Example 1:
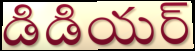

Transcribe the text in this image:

డిడియర్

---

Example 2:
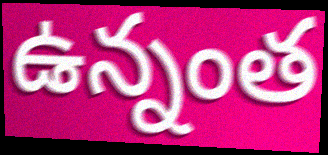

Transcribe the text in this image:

ఉన్నంత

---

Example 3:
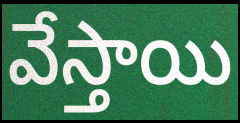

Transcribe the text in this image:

వేస్తాయి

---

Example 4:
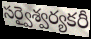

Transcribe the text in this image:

సర్వైశ్వర్యకరీ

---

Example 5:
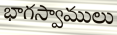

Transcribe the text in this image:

భాగస్వాములు